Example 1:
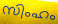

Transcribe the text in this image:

സിംഹം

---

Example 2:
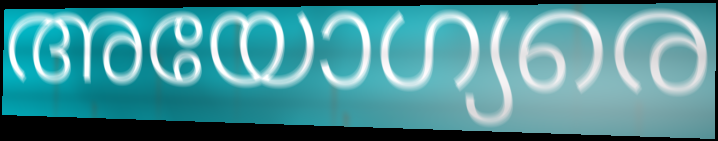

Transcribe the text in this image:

അയോഗ്യരെ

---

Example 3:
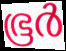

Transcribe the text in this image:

ഭൂർ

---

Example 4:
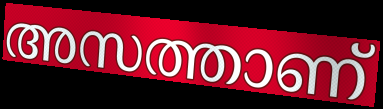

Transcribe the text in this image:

അസത്താണ്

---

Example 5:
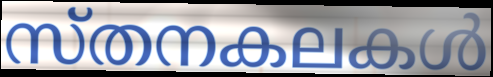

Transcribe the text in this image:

സ്തനകലകൾ